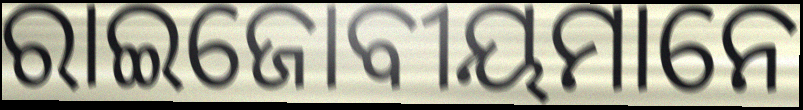
ରାଇଜୋବୀୟମାନେ